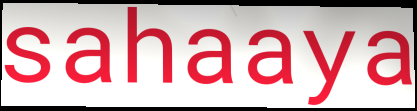
sahaaya